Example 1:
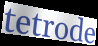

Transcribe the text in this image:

tetrode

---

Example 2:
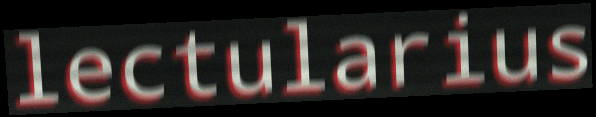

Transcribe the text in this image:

lectularius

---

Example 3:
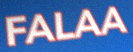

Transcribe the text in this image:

FALAA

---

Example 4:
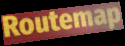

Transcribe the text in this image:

Routemap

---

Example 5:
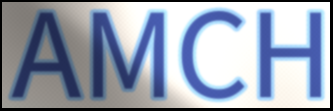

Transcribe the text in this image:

AMCH